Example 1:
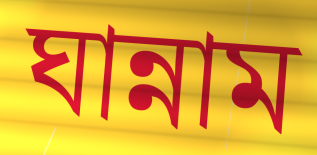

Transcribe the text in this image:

ঘান্নাম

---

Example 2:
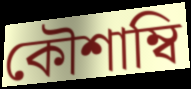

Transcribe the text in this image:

কৌশাম্বি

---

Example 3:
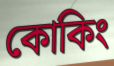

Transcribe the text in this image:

কোকিং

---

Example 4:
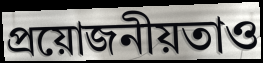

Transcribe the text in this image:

প্রয়োজনীয়তাও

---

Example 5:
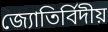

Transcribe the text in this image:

জ্যোতির্বিদীয়